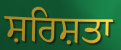
ਸ਼ਰਿਸ਼ਤਾ